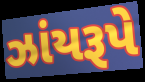
ઝાંયરૂપે